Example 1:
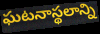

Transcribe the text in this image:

ఘటనాస్థలాన్ని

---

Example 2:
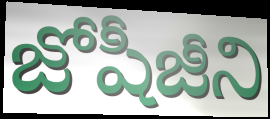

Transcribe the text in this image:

జోషీజీని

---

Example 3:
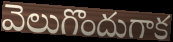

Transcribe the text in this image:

వెలుగొందుగాక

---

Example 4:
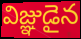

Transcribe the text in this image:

విజ్ఞుడైన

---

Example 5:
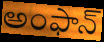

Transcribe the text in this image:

అంఫాన్